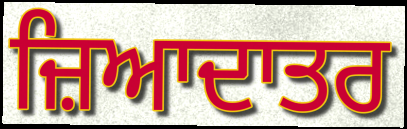
ਜ਼ਿਆਦਾਤਰ